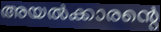
അയൽക്കാരന്റെ